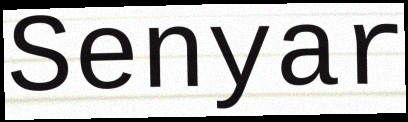
Senyar